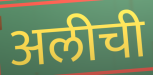
अलीची